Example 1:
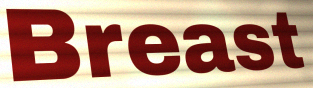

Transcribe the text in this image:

Breast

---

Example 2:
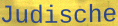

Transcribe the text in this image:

Judische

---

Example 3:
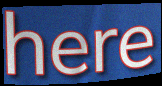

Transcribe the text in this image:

here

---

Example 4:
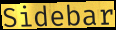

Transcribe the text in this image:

Sidebar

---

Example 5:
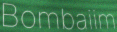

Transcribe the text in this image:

Bombaiim